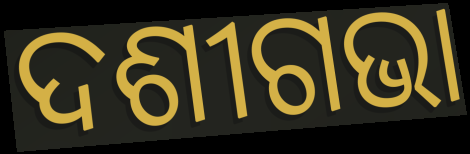
ଦଶୀଗଭା